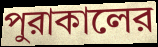
পুরাকালের